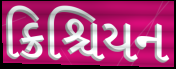
ક્રિશ્ચિયન